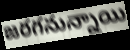
జరగనున్నాయి